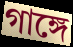
গাঙ্গে